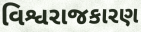
વિશ્વરાજકારણ